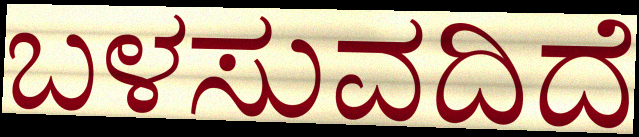
ಬಳಸುವದಿದೆ